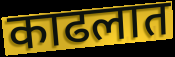
काढलात